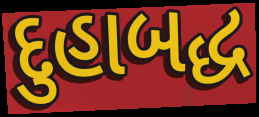
દુહાબદ્ધ